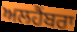
ਅਲਹੈਂਬਰਾ